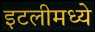
इटलीमध्ये